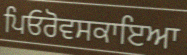
ਪਿਓਰੋਵਸਕਾਇਆ